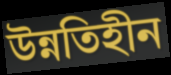
উন্নতিহীন